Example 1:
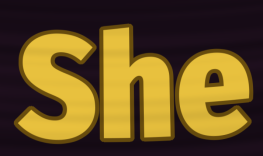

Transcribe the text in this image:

She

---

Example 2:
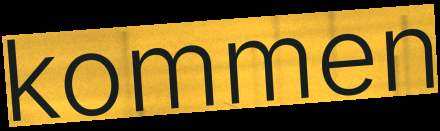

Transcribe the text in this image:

kommen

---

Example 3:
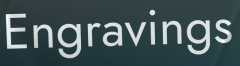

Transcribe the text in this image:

Engravings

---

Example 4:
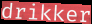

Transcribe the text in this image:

drikker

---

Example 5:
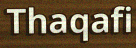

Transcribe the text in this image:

Thaqafi